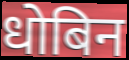
धोबिन